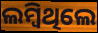
ଲମ୍ବିଥିଲେ